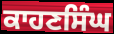
ਕਾਹਣਸਿੰਘ